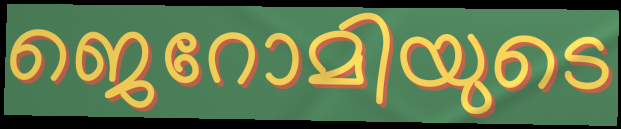
ജെറോമിയുടെ